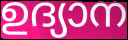
ഉദ്യാന